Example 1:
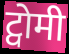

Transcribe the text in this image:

ट्वोमी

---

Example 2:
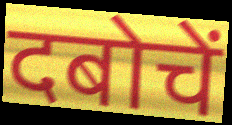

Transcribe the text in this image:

दबोचें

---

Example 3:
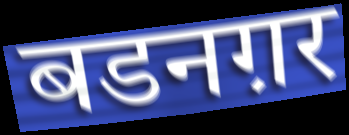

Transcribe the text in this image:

बडनग़र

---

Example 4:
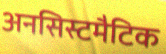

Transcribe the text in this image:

अनसिस्टमैटिक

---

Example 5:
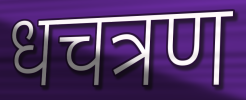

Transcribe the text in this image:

धचत्रण